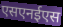
एसएनईएस